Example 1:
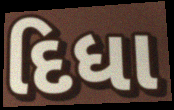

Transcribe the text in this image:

દિધા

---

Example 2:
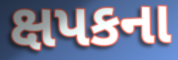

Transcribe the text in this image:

ક્ષપકના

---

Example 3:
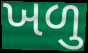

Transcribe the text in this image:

ખળુ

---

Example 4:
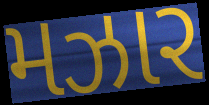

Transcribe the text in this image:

મઝાર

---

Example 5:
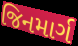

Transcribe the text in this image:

જિનમાર્ગ